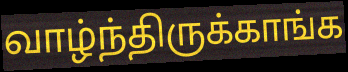
வாழ்ந்திருக்காங்க